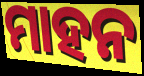
ମାହନ